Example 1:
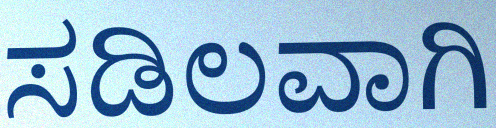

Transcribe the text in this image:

ಸಡಿಲವಾಗಿ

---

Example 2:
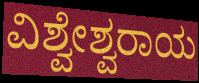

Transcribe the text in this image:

ವಿಶ್ವೇಶ್ವರಾಯ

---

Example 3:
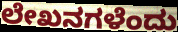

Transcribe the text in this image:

ಲೇಖನಗಳೆಂದು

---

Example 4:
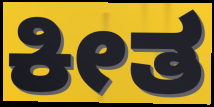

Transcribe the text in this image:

ಕೀತ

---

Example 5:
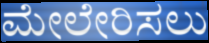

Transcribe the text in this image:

ಮೇಲೇರಿಸಲು